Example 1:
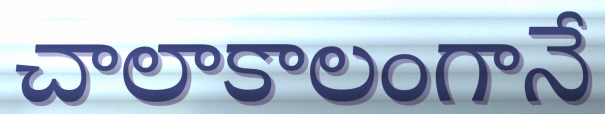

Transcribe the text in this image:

చాలాకాలంగానే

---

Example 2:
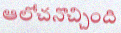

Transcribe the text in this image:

ఆలోచనొచ్చింది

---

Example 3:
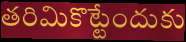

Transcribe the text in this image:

తరిమికొట్టేందుకు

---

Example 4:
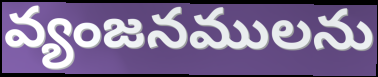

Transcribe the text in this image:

వ్యంజనములను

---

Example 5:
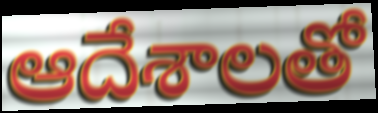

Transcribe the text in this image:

ఆదేశాలతో